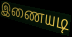
இணையடி